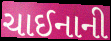
ચાઈનાની